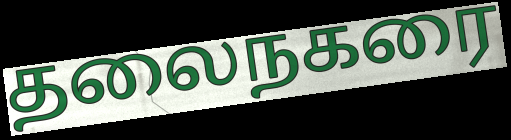
தலைநகரை